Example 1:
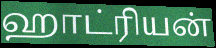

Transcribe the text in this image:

ஹாட்ரியன்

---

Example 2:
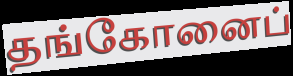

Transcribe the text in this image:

தங்கோனைப்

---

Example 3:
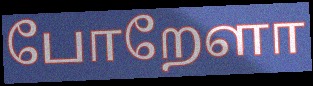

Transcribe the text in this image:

போறேளா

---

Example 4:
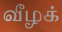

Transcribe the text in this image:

வீழக்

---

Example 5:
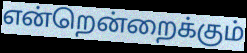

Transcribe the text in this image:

என்றென்றைக்கும்